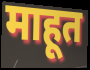
माहूत